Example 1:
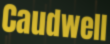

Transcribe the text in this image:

Caudwell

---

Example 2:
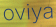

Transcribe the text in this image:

oviya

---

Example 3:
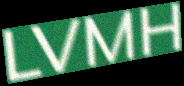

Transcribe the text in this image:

LVMH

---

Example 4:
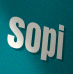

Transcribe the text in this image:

sopi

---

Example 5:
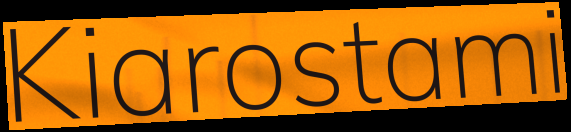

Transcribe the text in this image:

Kiarostami